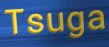
Tsuga